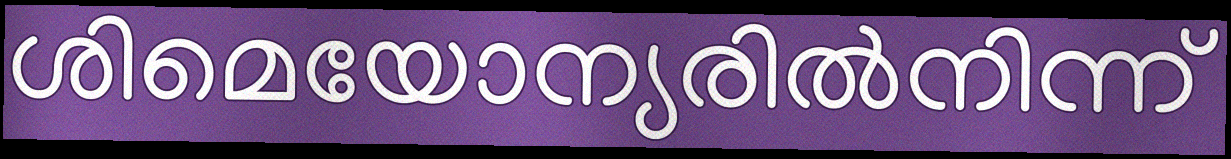
ശിമെയോന്യരിൽനിന്ന്